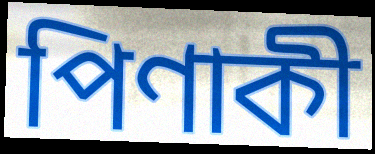
পিণাকী